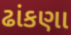
ઢાંકણા